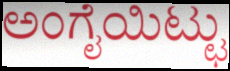
ಅಂಗೈಯಿಟ್ಟು